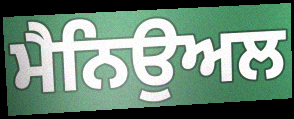
ਮੈਨਿਉਅਲ